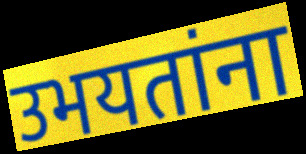
उभयतांना